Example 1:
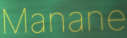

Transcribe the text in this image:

Manane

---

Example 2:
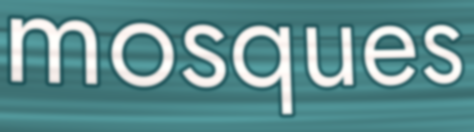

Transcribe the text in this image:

mosques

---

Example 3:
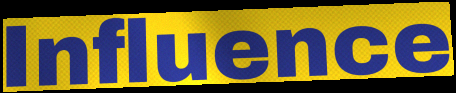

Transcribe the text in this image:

Influence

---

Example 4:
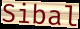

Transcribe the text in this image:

Sibal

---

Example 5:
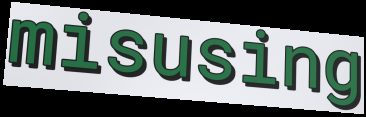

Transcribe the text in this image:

misusing